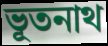
ভূতনাথ